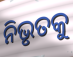
ନିଭୃତକୁ